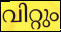
വിറ്റും